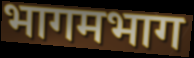
भागमभाग